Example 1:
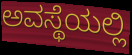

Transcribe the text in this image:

ಅವಸ್ಥೆಯಲ್ಲಿ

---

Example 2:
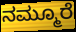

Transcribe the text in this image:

ನಮ್ಮೂರೆ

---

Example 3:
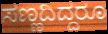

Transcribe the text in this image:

ಸಣ್ಣದಿದ್ದರೂ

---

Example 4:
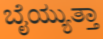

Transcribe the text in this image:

ಬೈಯ್ಯುತ್ತಾ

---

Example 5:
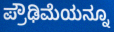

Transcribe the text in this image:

ಪ್ರೌಢಿಮೆಯನ್ನೂ